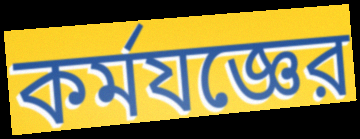
কর্মযজ্ঞের